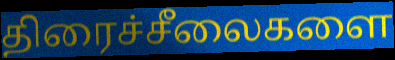
திரைச்சீலைகளை